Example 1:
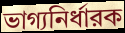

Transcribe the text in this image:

ভাগ্যনির্ধারক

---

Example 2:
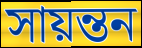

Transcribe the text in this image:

সায়ন্তন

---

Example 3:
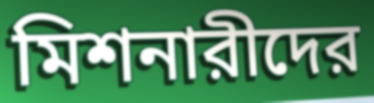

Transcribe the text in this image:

মিশনারীদের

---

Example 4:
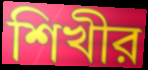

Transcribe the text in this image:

শিখীর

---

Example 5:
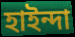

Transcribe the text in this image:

হাইন্দা